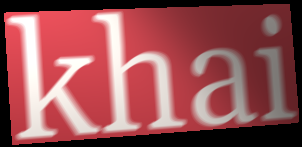
khai